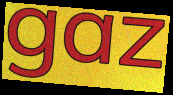
gaz